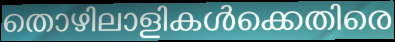
തൊഴിലാളികൾക്കെതിരെ